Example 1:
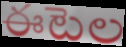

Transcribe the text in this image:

ఈటెల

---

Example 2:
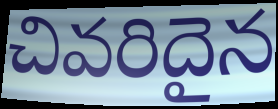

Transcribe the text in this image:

చివరిదైన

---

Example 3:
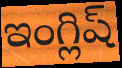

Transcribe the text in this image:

ఇంగ్లిష్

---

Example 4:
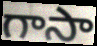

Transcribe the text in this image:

గాసా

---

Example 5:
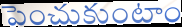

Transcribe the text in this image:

పెంచుకుంటాం